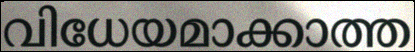
വിധേയമാക്കാത്ത